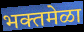
भक्तमेळा